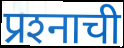
प्रश्‍नाची